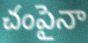
చంపైనా